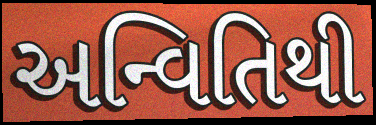
અન્વિતિથી